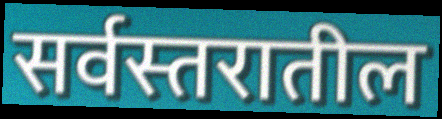
सर्वस्तरातील